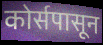
कोर्सपासून